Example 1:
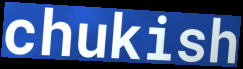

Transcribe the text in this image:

chukish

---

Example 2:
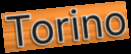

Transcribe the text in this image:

Torino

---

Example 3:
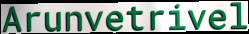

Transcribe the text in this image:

Arunvetrivel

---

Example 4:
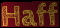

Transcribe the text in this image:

Haff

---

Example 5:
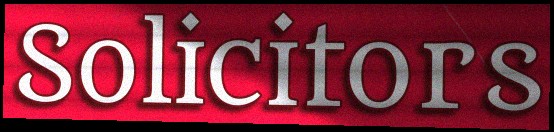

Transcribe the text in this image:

Solicitors